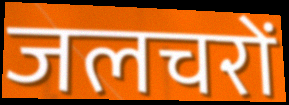
जलचरों